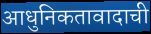
आधुनिकतावादाची